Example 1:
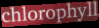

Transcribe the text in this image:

chlorophyll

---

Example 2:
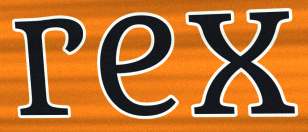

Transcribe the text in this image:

rex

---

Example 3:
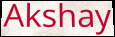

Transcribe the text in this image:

Akshay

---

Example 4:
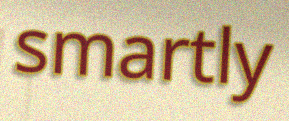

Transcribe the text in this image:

smartly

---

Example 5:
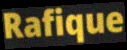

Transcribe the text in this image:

Rafique